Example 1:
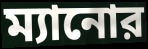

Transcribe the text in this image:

ম্যানোর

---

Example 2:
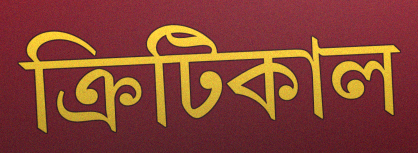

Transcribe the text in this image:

ক্রিটিকাল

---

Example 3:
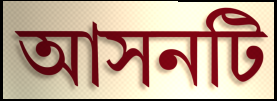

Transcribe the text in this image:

আসনটি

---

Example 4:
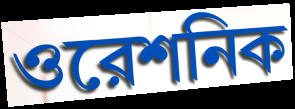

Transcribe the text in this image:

ওরেশনিক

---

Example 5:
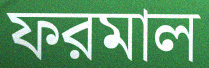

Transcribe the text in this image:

ফরমাল